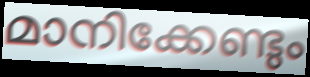
മാനിക്കേണ്ടും